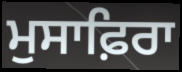
ਮੁਸਾਫ਼ਿਰਾ